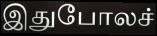
இதுபோலச்